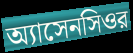
অ্যাসেনসিওর